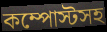
কম্পোস্টসহ